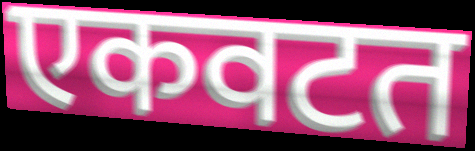
एकवटत